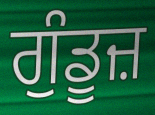
ਗੁੰਡੂਜ਼